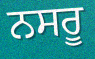
ਨਸਰੂ